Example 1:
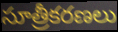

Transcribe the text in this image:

సూత్రీకరణలు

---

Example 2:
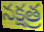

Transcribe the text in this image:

నక్షత్ర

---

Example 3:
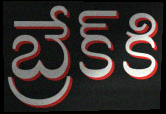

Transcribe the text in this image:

బ్రేక్‌కి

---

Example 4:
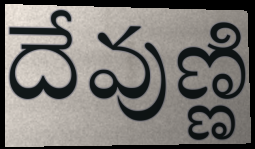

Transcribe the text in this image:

దేవుణ్ణి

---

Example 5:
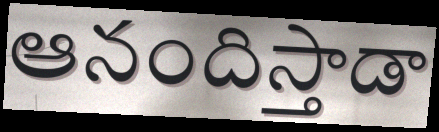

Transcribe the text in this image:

ఆనందిస్తాడా